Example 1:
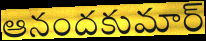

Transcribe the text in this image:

ఆనందకుమార్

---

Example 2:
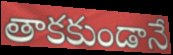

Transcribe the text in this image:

తాకకుండానే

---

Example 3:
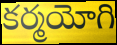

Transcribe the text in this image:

కర్మయోగి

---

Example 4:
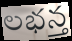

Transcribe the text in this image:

లభన్త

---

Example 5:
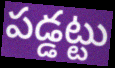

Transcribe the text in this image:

పడ్డట్టు